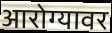
आरोग्यावर